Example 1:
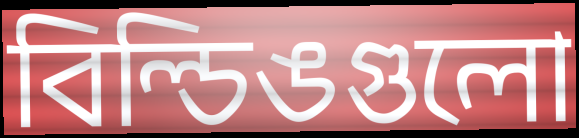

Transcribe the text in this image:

বিল্ডিঙগুলো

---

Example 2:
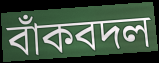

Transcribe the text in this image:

বাঁকবদল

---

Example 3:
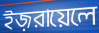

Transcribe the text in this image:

ইজ়রায়েলে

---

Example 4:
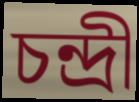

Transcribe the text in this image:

চন্দ্রী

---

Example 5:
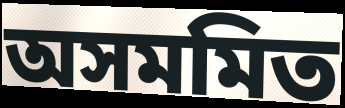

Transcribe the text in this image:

অসমমিত